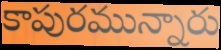
కాపురమున్నారు